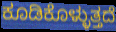
ಕೂಡಿಕೊಳ್ಳುತ್ತದೆ